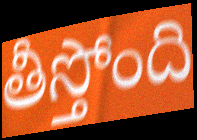
తీస్తోంది